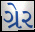
ગ્રેર